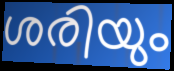
ശരിയും